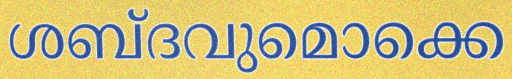
ശബ്ദവുമൊക്കെ